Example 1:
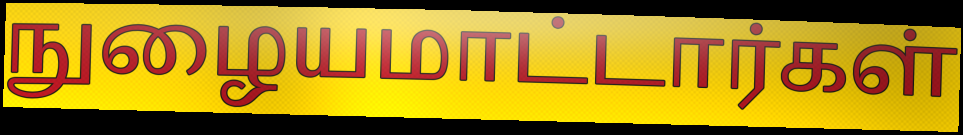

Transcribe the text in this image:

நுழையமாட்டார்கள்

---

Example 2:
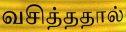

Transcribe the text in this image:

வசித்ததால்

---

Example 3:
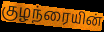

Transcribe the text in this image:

குழந்ரையின்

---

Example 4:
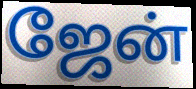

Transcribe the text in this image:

ஜேன்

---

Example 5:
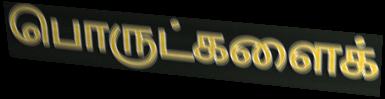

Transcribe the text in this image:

பொருட்களைக்